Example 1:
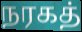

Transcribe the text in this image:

நரகத்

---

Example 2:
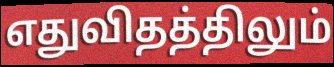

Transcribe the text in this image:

எதுவிதத்திலும்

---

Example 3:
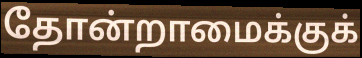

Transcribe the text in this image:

தோன்றாமைக்குக்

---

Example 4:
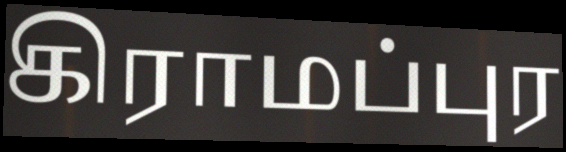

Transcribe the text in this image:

கிராமப்புர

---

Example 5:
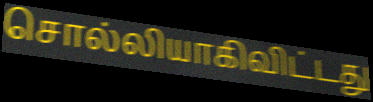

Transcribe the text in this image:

சொல்லியாகிவிட்டது